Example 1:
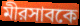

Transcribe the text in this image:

মীরসাবকে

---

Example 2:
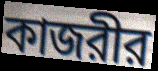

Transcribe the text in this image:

কাজরীর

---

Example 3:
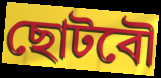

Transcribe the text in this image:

ছোটবৌ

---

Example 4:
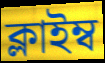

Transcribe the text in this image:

ক্লাইম্ব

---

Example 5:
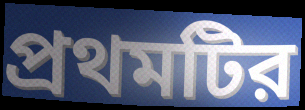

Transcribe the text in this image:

প্রথমটির